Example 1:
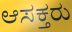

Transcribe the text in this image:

ಆಸಕ್ತರು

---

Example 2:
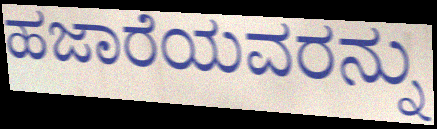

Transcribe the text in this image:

ಹಜಾರೆಯವರನ್ನು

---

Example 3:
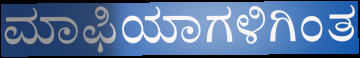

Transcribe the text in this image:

ಮಾಫಿಯಾಗಳಿಗಿಂತ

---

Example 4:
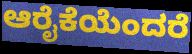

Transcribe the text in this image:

ಆರೈಕೆಯೆಂದರೆ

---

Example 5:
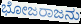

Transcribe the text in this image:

ಭೋಜರಾಜನು